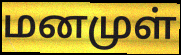
மனமுள்